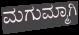
ಮಗುಮ್ಮಾಗಿ